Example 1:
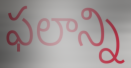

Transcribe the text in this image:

ఫలాన్ని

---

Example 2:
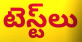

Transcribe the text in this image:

టెస్ట్‌లు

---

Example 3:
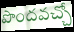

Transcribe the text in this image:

పొందవచ్చో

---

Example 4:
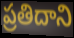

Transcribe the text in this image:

ప్రతిదాని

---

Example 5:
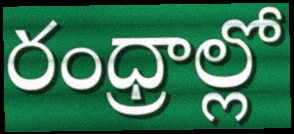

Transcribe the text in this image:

రంధ్రాల్లో